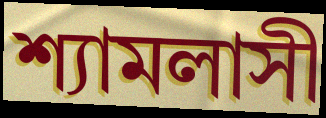
শ্যামলাসী